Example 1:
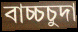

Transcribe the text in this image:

বাচ্চচুদা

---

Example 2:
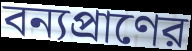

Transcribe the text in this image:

বন্যপ্রাণের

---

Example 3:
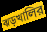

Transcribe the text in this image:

ঝড়খালির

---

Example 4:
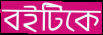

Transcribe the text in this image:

বইটিকে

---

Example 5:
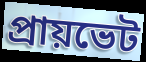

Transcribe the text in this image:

প্রায়ভেট